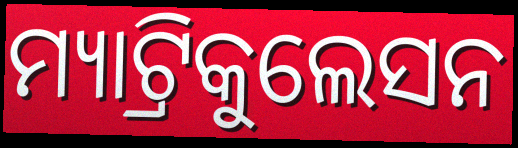
ମ୍ୟାଟ୍ରିକୁଲେସନ